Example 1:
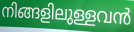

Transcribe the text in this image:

നിങ്ങളിലുള്ളവൻ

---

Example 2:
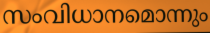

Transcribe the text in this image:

സംവിധാനമൊന്നും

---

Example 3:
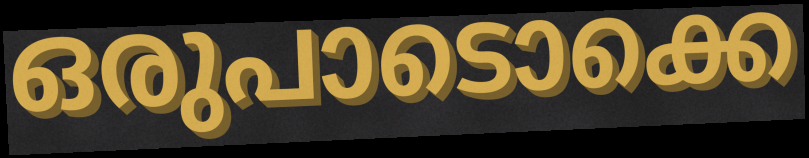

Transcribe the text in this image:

ഒരുപാടൊക്കെ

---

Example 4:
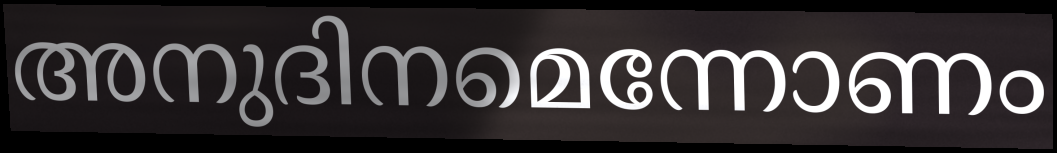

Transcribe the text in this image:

അനുദിനമെന്നോണം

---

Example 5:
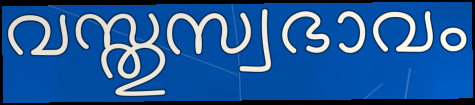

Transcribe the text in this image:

വസ്തുസ്വഭാവം